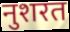
नुशरत